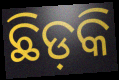
ଛିଡ଼କି